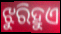
ଝୁରିହୁଏ